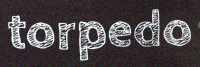
torpedo